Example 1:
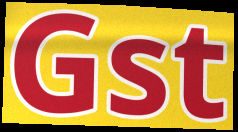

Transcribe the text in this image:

Gst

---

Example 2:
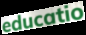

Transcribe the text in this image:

educatio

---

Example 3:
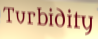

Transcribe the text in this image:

Turbidity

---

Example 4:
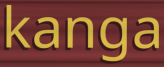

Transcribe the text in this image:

kanga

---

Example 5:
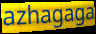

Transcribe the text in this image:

azhagaga